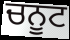
ਚਨੂਟ